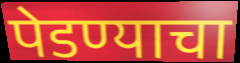
पेडण्याचा